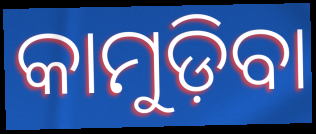
କାମୁଡ଼ିବା